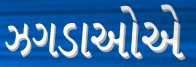
ઝગડાઓએ